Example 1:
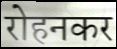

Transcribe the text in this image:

रोहनकर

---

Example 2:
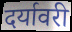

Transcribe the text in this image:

दर्यावरी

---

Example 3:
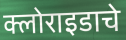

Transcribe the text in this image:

क्लोराइडाचे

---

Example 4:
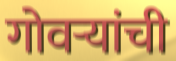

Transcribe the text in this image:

गोवऱ्यांची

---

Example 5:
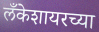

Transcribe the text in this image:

लँकेशायरच्या